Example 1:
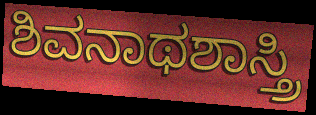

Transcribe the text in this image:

ಶಿವನಾಥಶಾಸ್ತ್ರಿ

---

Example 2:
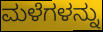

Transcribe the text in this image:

ಮಳೆಗಳನ್ನು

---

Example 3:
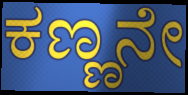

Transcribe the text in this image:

ಕಣ್ಣನೇ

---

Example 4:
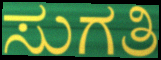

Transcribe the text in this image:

ಸುಗತಿ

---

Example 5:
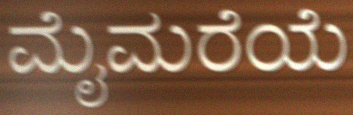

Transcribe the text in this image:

ಮೈಮರೆಯೆ